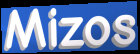
Mizos